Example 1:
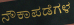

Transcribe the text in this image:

ನೌಕಾಪಡೆಗಳ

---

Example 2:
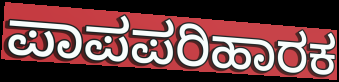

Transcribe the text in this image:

ಪಾಪಪರಿಹಾರಕ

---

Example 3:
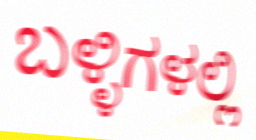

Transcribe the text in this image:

ಬಳ್ಳಿಗಳಲ್ಲಿ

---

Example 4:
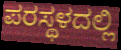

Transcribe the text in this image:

ಪರಸ್ಥಳದಲ್ಲಿ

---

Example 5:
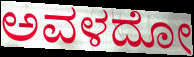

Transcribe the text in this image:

ಅವಳದೋ